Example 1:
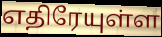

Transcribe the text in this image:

எதிரேயுள்ள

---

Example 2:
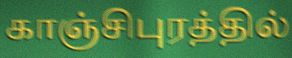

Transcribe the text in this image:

காஞ்சிபுரத்தில்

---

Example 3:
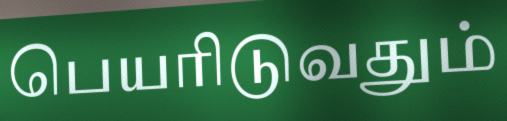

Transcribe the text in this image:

பெயரிடுவதும்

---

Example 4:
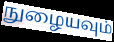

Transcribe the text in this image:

நுழையவும்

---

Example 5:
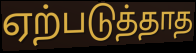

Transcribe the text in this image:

ஏற்படுத்தாத